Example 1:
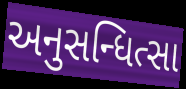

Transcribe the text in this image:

અનુસન્ધિત્સા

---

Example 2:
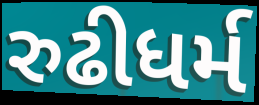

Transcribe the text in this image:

રુઢીધર્મ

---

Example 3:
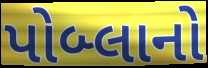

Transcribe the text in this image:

પોબ્લાનો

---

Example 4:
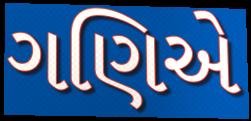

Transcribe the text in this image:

ગણિએ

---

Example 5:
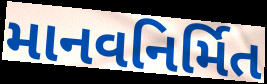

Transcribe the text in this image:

માનવનિર્મિત